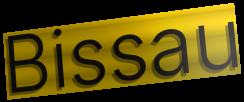
Bissau